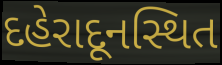
દહેરાદૂનસ્થિત